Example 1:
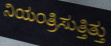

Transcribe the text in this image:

ನಿಯಂತ್ರಿಸುತ್ತಿತ್ತು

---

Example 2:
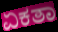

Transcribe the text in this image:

ಏಕತಾ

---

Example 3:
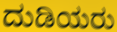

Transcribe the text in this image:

ದುಡಿಯರು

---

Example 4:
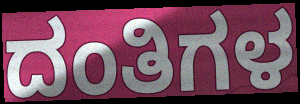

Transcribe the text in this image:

ದಂತಿಗಳ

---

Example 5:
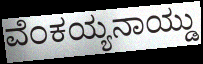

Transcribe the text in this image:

ವೆಂಕಯ್ಯನಾಯ್ಡು